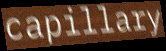
capillary